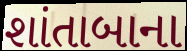
શાંતાબાના